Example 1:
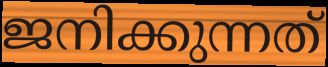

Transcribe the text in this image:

ജനിക്കുന്നത്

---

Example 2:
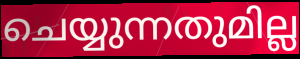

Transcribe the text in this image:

ചെയ്യുന്നതുമില്ല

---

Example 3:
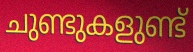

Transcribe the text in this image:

ചുണ്ടുകളുണ്ട്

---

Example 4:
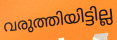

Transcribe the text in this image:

വരുത്തിയിട്ടില്ല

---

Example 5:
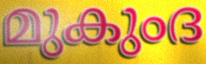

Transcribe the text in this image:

മുകുംദ